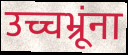
उच्चभ्रूंना